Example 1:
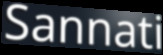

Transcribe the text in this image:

Sannati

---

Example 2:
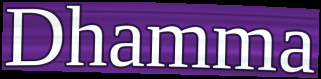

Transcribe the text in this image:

Dhamma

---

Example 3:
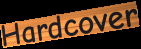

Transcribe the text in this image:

Hardcover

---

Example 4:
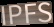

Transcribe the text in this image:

IPFS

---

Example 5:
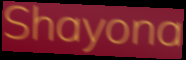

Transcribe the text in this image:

Shayona